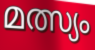
മത്സ്യം